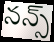
నన్స్